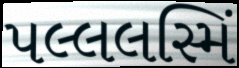
પલ્લલસ્મિં